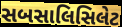
સબસાલિસિલેટ